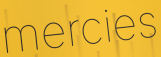
mercies